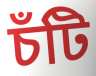
চঁটি